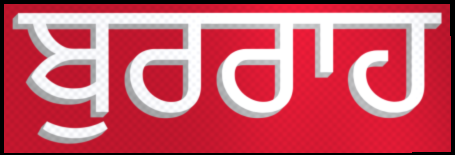
ਬੁਰਰਾਹ